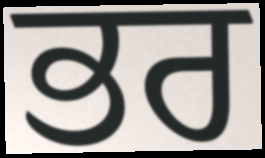
ਭਰ